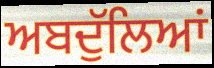
ਅਬਦੁੱਲਿਆਂ